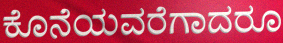
ಕೊನೆಯವರೆಗಾದರೂ